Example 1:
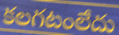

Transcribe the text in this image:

కలగటంలేదు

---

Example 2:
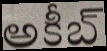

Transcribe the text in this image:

అకీబ్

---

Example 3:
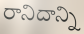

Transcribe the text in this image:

రానిదాన్ని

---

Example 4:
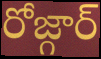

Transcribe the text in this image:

రోజ్గార్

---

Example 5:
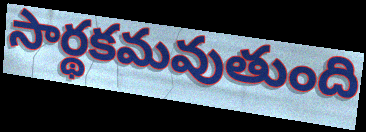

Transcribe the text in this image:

సార్థకమవుతుంది